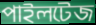
পাইলটেজ